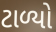
ટાળ્યો